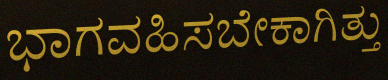
ಭಾಗವಹಿಸಬೇಕಾಗಿತ್ತು